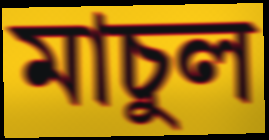
মাচুল